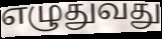
எழுதுவது